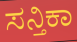
ಸನ್ತಿಕಾ